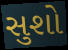
સુશો